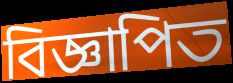
বিজ্ঞাপিত